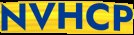
NVHCP